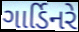
ગાર્ડિનરે